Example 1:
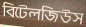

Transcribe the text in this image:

বিটেলজিউস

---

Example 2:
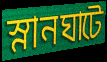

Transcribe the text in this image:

স্নানঘাটে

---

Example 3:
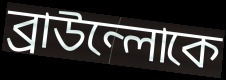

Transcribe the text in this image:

ব্রাউন্লোকে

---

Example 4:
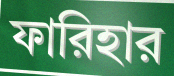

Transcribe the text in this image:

ফারিহার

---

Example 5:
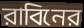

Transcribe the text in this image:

রাবিনের